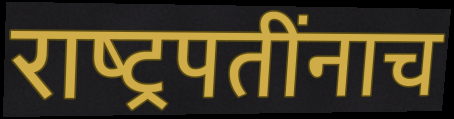
राष्ट्रपतींनाच